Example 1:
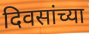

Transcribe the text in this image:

दिवसांच्या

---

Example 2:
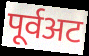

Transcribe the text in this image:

पूर्वअट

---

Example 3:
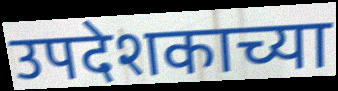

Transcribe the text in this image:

उपदेशकाच्या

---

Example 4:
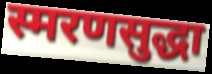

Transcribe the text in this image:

स्मरणसुद्धा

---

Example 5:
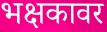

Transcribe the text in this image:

भक्षकावर